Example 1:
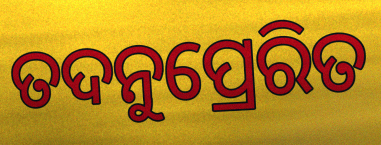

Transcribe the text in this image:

ତଦନୁପ୍ରେରିତ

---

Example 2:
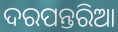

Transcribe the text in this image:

ଦରପନ୍ତରିଆ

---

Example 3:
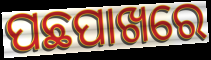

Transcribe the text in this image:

ପଛପାଖରେ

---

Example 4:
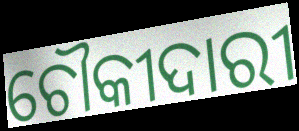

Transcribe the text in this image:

ଚୌକୀଦାରୀ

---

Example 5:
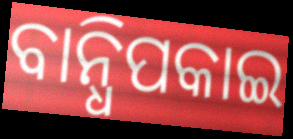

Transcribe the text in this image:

ବାନ୍ଧିପକାଇ